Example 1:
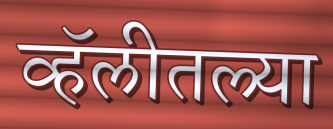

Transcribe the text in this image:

व्हॅलीतल्या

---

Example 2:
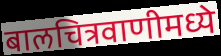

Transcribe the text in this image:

बालचित्रवाणीमध्ये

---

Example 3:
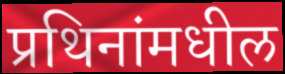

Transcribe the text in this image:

प्रथिनांमधील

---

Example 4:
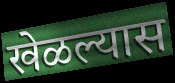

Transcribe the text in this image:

खेळल्यास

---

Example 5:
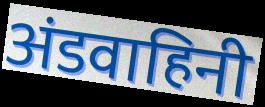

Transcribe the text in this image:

अंडवाहिनी